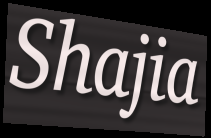
Shajia